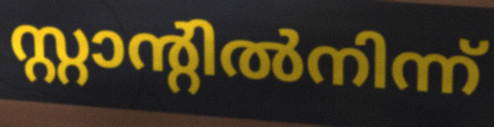
സ്റ്റാന്റിൽനിന്ന്